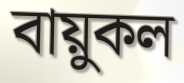
বায়ুকল